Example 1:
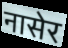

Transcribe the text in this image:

नासेर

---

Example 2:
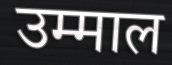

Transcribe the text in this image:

उम्माल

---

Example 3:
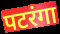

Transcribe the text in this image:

पटरंगा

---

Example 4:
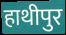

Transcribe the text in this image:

हाथीपुर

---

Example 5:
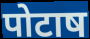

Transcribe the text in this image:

पोटाष